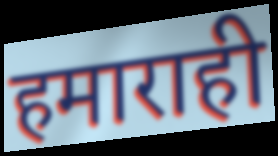
हमाराही